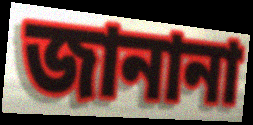
জানানা